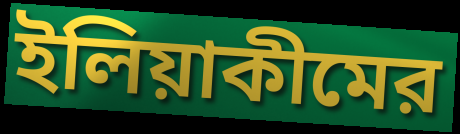
ইলিয়াকীমের